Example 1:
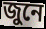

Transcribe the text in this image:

জুনে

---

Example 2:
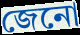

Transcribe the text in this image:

জেনো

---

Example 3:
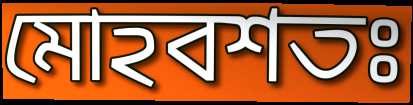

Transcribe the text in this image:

মোহবশতঃ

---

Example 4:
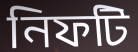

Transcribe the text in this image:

নিফটি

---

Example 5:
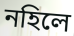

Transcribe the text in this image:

নহিলে